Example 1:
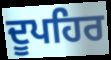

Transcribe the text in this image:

ਦੂਪਹਿਰ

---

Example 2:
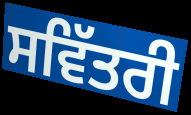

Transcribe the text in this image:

ਸਵਿੱਤਰੀ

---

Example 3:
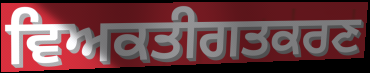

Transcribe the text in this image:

ਵਿਅਕਤੀਗਤਕਰਣ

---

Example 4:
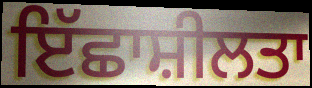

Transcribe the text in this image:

ਇੱਛਾਸ਼ੀਲਤਾ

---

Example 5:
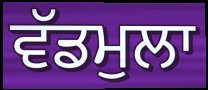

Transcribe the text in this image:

ਵੱਡਮੁਲਾ